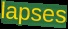
lapses